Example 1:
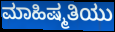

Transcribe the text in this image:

ಮಾಹಿಷ್ಮತಿಯು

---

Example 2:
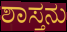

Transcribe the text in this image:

ಶಾಸ್ತನು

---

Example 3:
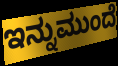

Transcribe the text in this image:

ಇನ್ನುಮುಂದೆ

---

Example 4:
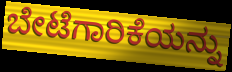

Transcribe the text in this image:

ಬೇಟೆಗಾರಿಕೆಯನ್ನು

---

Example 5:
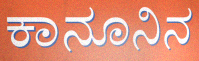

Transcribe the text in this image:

ಕಾನೂನಿನ